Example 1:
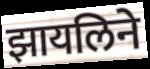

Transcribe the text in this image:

झायलिने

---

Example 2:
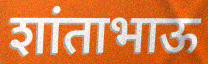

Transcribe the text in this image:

शांताभाऊ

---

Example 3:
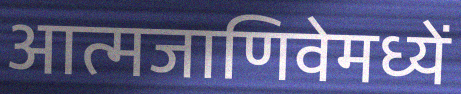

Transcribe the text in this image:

आत्मजाणिवेमध्यें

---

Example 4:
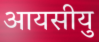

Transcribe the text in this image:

आयसीयु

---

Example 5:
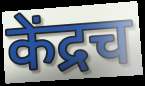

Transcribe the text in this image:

केंद्रच